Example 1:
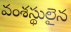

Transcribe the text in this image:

వంశస్థులైన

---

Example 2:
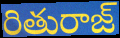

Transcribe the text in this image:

రితురాజ్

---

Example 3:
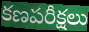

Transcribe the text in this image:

కణపరీక్షలు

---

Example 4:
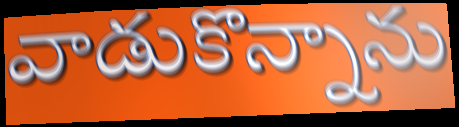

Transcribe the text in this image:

వాడుకొన్నాను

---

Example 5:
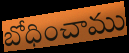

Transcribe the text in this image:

బోధించాము